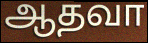
ஆதவா